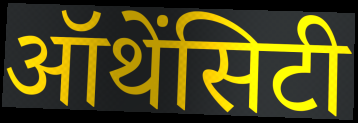
ऑथेंसिटी